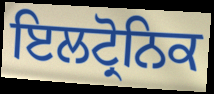
ਇਲਟ੍ਰੋਨਿਕ